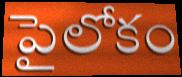
పైలోకం